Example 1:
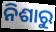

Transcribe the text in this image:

ନିଶାରୁ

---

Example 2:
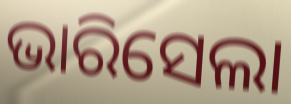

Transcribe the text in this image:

ଭାରିସେଲା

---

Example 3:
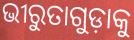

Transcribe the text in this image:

ଭୀରୁତାଗୁଡ଼ାକୁ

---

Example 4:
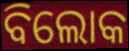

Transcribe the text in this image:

ବିଲୋକ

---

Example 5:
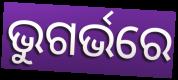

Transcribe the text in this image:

ଭୁଗର୍ଭରେ